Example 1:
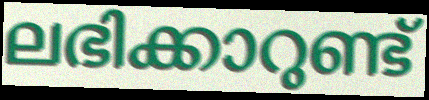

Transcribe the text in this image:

ലഭിക്കാറുണ്ട്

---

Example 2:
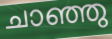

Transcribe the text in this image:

ചാഞ്ഞു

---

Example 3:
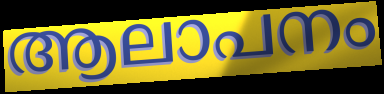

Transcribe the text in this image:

ആലാപനം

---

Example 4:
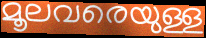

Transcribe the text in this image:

മൂലവരെയുള്ള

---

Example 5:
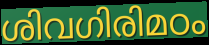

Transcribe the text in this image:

ശിവഗിരിമഠം